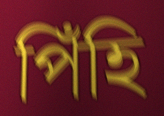
পিঁহি